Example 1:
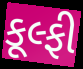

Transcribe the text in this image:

કૂલ્ફી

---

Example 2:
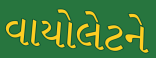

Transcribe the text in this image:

વાયોલેટને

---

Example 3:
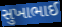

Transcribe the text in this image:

સુખાભાઈ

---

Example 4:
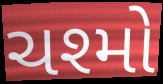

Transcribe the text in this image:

ચશ્મો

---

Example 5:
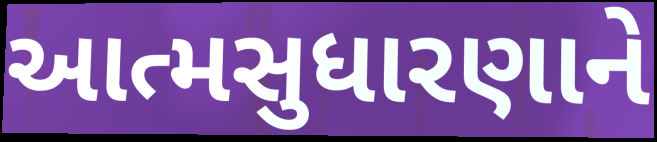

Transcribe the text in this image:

આત્મસુધારણાને